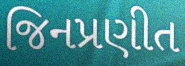
જિનપ્રણીત